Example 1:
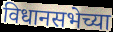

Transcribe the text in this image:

विधानसभेच्या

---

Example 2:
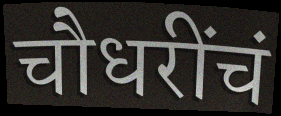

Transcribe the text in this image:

चौधरींचं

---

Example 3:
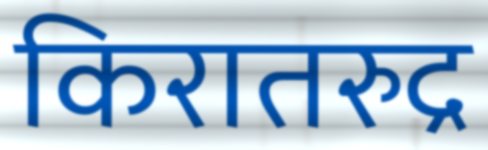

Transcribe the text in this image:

किरातरुद्र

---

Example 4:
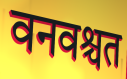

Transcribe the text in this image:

वनवश्चत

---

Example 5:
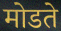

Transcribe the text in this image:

मोडते